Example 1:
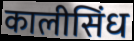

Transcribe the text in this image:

कालीसिंध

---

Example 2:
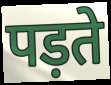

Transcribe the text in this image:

पड़ते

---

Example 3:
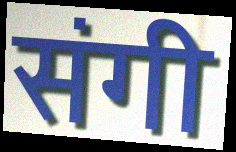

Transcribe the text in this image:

संगी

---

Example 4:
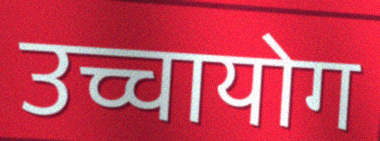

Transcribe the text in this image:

उच्चायोग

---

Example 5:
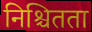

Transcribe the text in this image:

निश्चितता